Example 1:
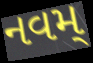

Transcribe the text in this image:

નવમ્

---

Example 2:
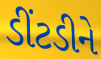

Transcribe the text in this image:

ડીંટડીને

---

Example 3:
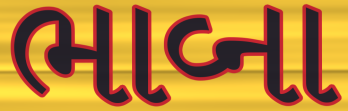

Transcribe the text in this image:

ભાવ્ના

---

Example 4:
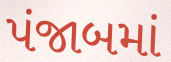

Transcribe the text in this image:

પંજાબમાં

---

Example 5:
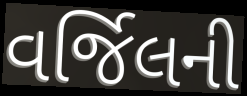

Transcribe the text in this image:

વર્જિલની